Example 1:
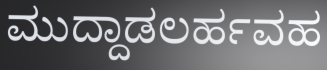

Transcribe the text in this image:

ಮುದ್ದಾಡಲರ್ಹವಹ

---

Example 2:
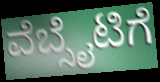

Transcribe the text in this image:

ವೆಬ್ಸೈಟಿಗೆ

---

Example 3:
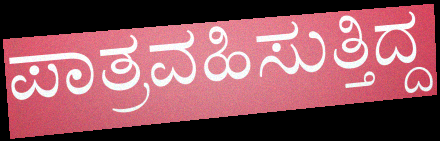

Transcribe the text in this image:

ಪಾತ್ರವಹಿಸುತ್ತಿದ್ದ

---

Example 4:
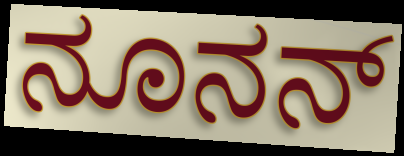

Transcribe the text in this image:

ನೂನನ್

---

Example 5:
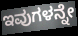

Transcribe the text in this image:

ಇವುಗಳನ್ನೇ